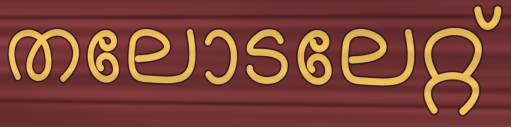
തലോടലേറ്റ്